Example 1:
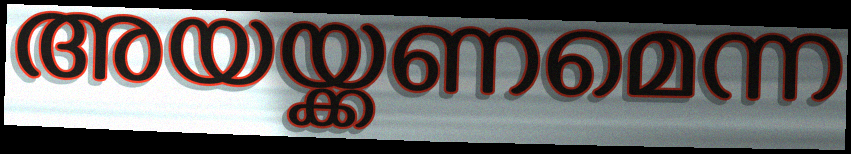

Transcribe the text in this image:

അയയ്ക്കണമെന്ന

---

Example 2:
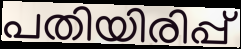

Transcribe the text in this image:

പതിയിരിപ്പ്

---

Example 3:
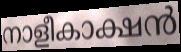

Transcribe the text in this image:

നാളീകാക്ഷൻ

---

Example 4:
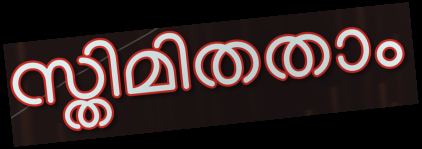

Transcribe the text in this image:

സ്തിമിതതാം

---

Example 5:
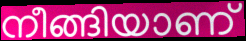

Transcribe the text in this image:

നീങ്ങിയാണ്